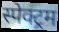
स्पेक्ट्रम